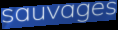
sauvages